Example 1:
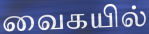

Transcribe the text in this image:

வைகயில்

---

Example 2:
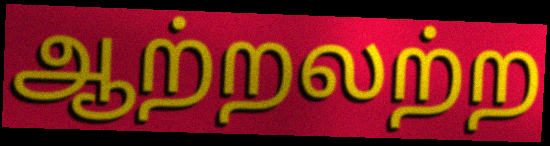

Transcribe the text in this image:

ஆற்றலற்ற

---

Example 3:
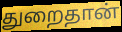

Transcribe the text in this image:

துறைதான்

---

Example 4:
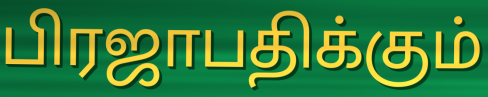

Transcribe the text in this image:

பிரஜாபதிக்கும்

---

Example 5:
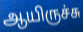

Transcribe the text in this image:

ஆயிருச்சு